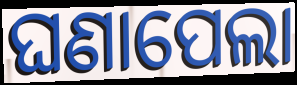
ଘଣାପେଲା